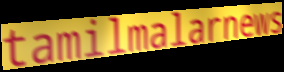
tamilmalarnews